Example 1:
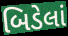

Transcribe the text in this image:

બિડેલાં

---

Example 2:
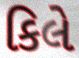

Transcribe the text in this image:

કિલે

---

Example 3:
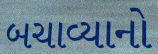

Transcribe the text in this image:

બચાવ્યાનો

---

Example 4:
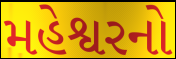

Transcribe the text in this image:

મહેશ્વરનો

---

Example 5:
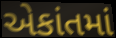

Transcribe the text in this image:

એકાંતમાં